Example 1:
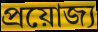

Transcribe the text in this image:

প্রয়োজ্য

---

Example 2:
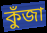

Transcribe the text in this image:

কুঁজা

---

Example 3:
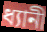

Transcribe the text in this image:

ধ্যানী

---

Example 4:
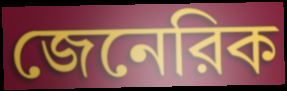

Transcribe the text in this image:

জেনেরিক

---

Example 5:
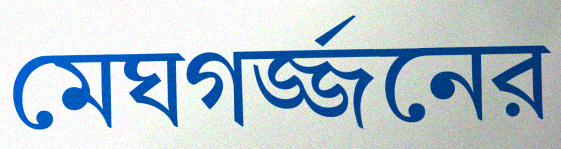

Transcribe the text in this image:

মেঘগর্জ্জনের